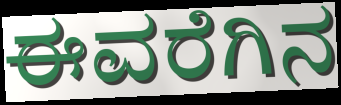
ಈವರೆಗಿನ